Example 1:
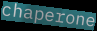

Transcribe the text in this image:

chaperone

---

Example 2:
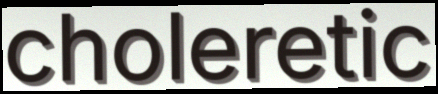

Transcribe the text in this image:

choleretic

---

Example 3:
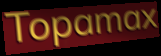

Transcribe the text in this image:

Topamax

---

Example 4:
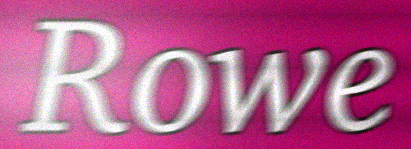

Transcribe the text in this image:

Rowe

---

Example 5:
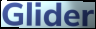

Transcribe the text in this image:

Glider